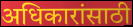
अधिकारांसाठी